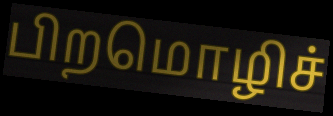
பிறமொழிச்